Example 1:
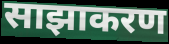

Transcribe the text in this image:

साझाकरण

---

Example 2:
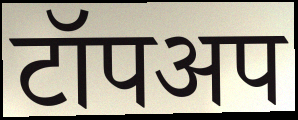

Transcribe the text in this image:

टॉपअप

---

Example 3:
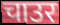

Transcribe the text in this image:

चाउर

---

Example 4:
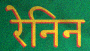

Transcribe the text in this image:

रेनिन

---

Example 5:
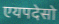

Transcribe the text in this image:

एयपदेसो